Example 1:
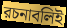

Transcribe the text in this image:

রচনাবলিই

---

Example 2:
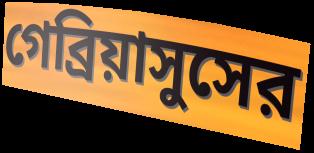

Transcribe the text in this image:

গেব্রিয়াসুসের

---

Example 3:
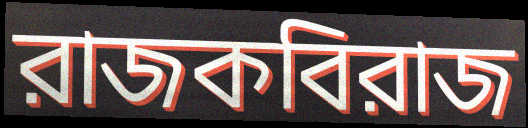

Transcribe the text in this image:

রাজকবিরাজ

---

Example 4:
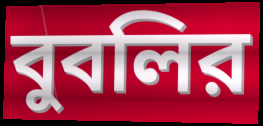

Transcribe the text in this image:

বুবলির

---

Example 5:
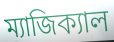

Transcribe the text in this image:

ম্যাজিক্যাল